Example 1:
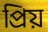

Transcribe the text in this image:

প্ৰিয়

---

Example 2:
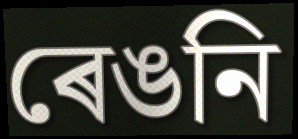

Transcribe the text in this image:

ৰেঙনি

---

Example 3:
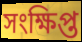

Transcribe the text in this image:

সংক্ষিপ্ত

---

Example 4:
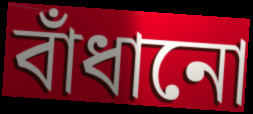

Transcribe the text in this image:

বাঁধানো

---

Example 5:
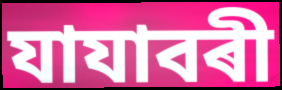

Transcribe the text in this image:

যাযাবৰী